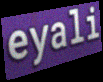
eyali